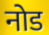
नोड